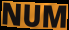
NUM